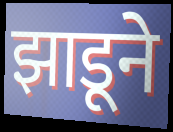
झाडूने